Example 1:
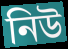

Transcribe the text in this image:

নিউ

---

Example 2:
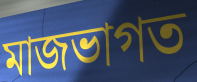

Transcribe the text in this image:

মাজভাগত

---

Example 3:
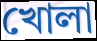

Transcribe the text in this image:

খোলা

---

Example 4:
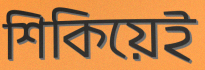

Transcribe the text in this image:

শিকিয়েই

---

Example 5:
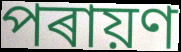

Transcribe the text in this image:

পৰায়ণ